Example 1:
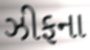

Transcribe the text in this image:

ઝીફના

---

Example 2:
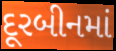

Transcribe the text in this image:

દૂરબીનમાં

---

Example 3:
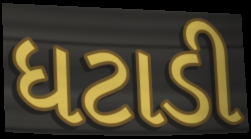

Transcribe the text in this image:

ધટાડી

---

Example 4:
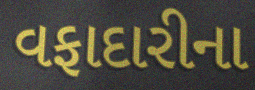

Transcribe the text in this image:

વફાદારીના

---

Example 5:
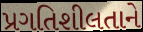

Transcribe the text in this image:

પ્રગતિશીલતાને